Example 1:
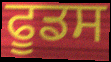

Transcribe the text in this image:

ਫੂਡਸ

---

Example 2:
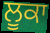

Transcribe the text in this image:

ਲੂਕਾ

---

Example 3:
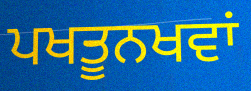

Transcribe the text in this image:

ਪਖਤੂਨਖਵਾਂ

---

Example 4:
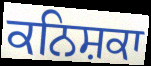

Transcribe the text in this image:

ਕਨਿਸ਼ਕਾ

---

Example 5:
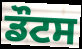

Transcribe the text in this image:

ਡੌਟਸ